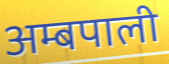
अम्बपाली